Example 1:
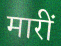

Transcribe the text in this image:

मारीं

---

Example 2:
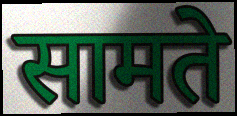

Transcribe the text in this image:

सामते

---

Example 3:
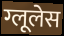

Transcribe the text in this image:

ग्लूलेस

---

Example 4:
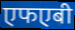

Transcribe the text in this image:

एफएबी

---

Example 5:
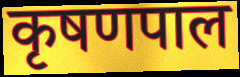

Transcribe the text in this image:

कृषणपाल